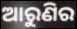
ଆରୁଣିର